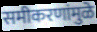
समीकरणांमुळे